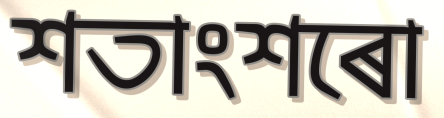
শতাংশৰো